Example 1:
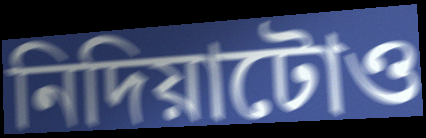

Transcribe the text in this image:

নিদিয়াটোও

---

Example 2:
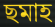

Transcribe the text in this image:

ছমাহ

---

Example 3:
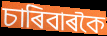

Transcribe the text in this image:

চাৰিবাৰকৈ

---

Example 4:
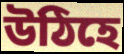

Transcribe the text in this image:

উঠিহে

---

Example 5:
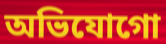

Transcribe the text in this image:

অভিযোগো